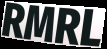
RMRL